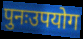
पुनःउपयोग